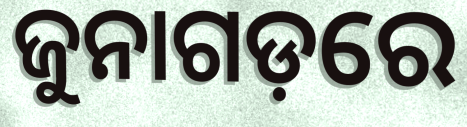
ଜୁନାଗଡ଼ରେ